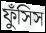
ফুঁসিস